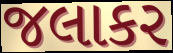
જલાકર